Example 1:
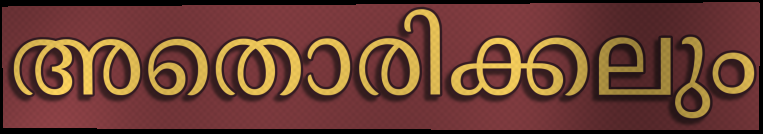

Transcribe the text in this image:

അതൊരിക്കലും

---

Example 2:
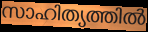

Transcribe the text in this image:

സാഹിത്യത്തിൽ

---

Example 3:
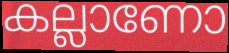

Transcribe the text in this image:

കല്ലാണോ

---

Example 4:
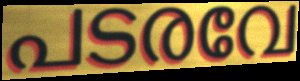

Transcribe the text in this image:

പടരവേ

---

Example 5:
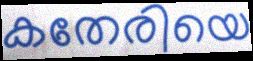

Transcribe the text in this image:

കതേരിയെ